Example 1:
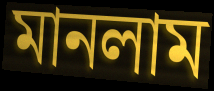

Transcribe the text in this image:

মানলাম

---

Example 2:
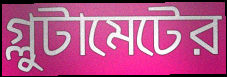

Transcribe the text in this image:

গ্লুটামেটের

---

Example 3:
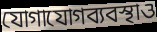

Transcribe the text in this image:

যোগাযোগব্যবস্থাও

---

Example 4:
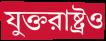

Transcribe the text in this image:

যুক্তরাষ্ট্রও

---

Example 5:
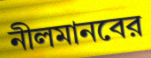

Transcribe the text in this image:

নীলমানবের